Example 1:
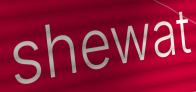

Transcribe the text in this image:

shewat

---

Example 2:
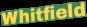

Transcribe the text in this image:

Whitfield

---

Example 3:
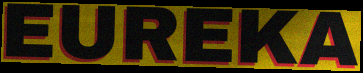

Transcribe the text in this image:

EUREKA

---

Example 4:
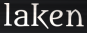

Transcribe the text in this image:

laken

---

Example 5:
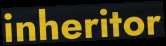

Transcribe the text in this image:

inheritor